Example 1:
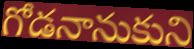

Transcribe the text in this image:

గోడనానుకుని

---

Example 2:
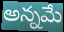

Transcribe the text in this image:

అన్నమే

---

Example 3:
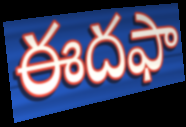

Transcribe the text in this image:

ఈదఫా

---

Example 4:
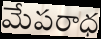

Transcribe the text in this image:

మేపరాధ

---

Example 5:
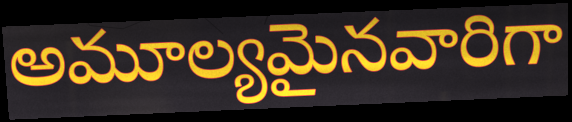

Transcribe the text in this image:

అమూల్యమైనవారిగా